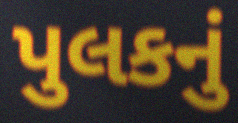
પુલકનું